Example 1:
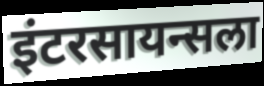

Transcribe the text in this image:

इंटरसायन्सला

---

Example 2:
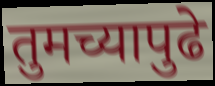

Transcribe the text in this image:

तुमच्यापुढे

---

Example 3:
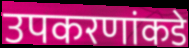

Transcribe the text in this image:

उपकरणांकडे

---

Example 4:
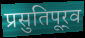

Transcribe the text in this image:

प्रसुतिपूर्व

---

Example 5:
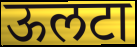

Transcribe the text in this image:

ऊलटा